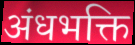
अंधभक्ति